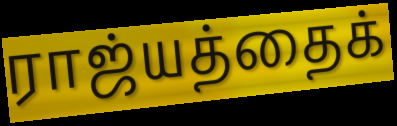
ராஜ்யத்தைக்